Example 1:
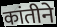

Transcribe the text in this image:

कांतीने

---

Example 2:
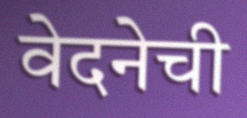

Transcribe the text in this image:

वेदनेची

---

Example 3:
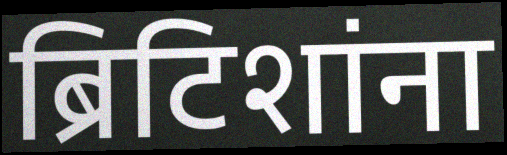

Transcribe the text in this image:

ब्रिटिशांना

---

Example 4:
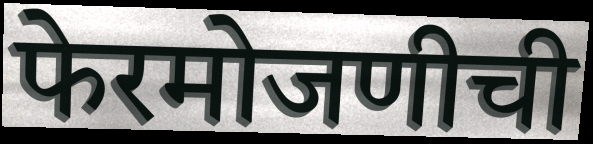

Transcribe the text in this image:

फेरमोजणीची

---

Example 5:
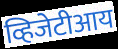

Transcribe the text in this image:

व्हिजेटीआय